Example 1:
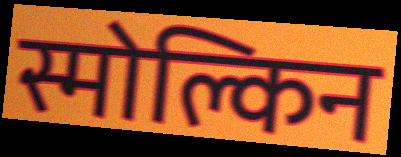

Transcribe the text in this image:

स्मोल्किन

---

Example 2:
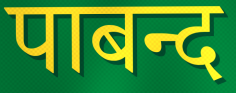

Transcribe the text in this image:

पाबन्द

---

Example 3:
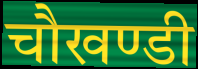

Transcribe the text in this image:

चौखण्डी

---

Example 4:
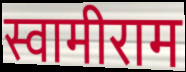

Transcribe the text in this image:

स्वामीराम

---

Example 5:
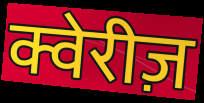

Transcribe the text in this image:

क्वेरीज़